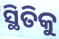
ସ୍ଥିତିକୁ